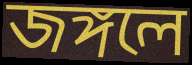
জঙ্গলে